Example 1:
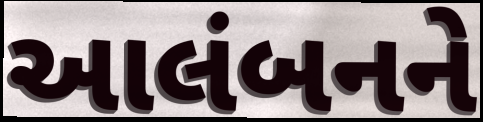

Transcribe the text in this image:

આલંબનને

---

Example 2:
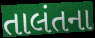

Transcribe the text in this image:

તાલંતના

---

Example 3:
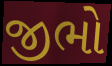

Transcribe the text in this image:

જીભો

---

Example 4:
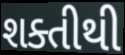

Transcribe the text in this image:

શક્તીથી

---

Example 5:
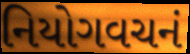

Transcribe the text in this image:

નિયોગવચનં